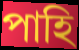
পাহি